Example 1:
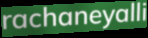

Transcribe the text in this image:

rachaneyalli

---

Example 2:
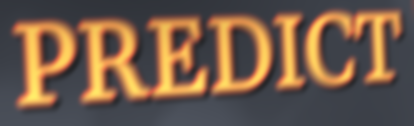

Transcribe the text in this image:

PREDICT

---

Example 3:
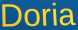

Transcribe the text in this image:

Doria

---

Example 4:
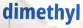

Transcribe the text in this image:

dimethyl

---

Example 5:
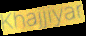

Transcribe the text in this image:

Khajjiyar